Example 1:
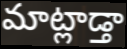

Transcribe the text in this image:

మాట్లాడ్తా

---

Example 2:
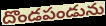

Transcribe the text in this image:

దొండపండును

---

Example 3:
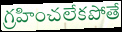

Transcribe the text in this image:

గ్రహించలేకపోతే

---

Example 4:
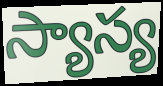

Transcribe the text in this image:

స్యాస్య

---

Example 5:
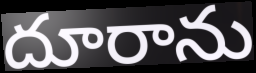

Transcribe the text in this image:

దూరాను